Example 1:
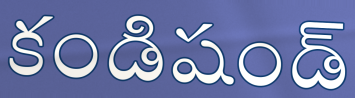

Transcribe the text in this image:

కండిషండ్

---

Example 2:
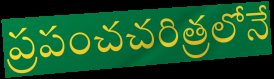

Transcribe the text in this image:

ప్రపంచచరిత్రలోనే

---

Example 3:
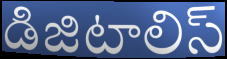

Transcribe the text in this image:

డిజిటాలిస్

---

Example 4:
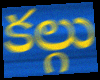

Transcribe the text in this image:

కల్గు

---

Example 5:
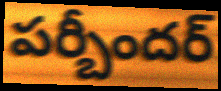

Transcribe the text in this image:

పర్బీందర్